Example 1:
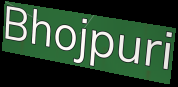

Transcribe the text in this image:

Bhojpuri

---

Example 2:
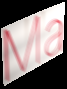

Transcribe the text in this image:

Ma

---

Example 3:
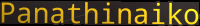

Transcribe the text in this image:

Panathinaiko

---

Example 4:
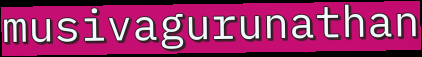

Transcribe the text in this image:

musivagurunathan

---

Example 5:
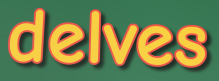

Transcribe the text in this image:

delves